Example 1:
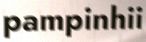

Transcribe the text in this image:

pampinhii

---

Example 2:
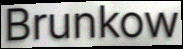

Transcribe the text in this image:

Brunkow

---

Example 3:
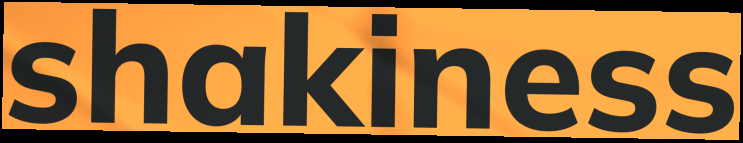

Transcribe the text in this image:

shakiness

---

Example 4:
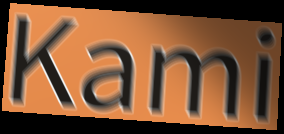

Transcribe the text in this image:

Kami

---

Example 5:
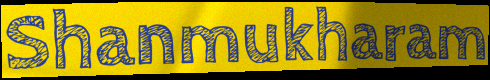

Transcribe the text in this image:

Shanmukharam